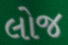
લોજ